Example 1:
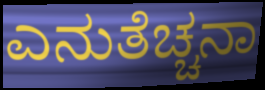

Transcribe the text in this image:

ಎನುತೆಚ್ಚನಾ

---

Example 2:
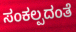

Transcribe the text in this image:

ಸಂಕಲ್ಪದಂತೆ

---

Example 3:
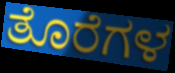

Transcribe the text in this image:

ತೊರೆಗಳ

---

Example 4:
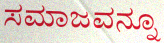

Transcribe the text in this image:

ಸಮಾಜವನ್ನೂ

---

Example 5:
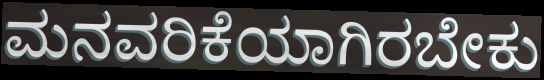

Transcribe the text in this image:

ಮನವರಿಕೆಯಾಗಿರಬೇಕು